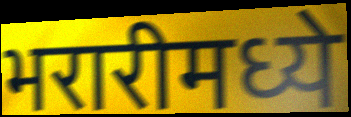
भरारीमध्ये